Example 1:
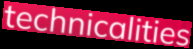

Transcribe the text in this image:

technicalities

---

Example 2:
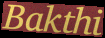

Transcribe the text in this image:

Bakthi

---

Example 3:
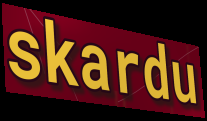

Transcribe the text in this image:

skardu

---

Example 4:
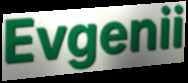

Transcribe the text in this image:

Evgenii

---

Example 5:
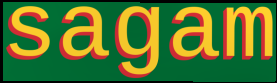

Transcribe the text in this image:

sagam